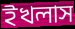
ইখলাস